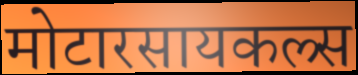
मोटारसायकल्स